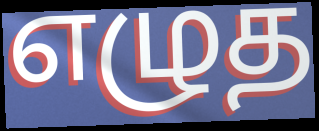
எழுத